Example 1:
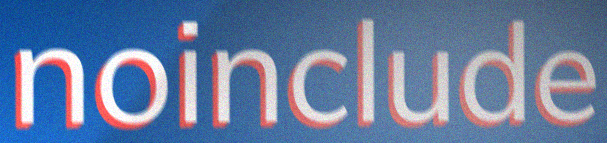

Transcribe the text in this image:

noinclude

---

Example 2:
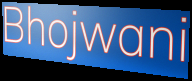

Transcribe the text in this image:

Bhojwani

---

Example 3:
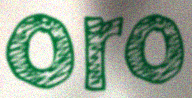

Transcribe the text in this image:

oro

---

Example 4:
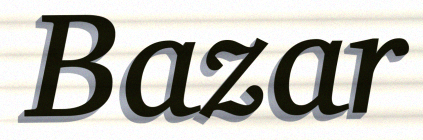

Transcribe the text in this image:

Bazar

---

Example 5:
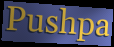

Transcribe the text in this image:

Pushpa